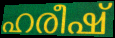
ഹരീഷ്